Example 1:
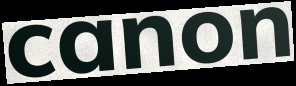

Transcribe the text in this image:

canon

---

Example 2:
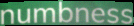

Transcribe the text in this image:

numbness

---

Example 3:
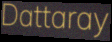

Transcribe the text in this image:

Dattaray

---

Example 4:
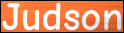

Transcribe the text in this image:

Judson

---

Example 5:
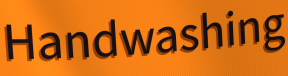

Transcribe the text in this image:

Handwashing